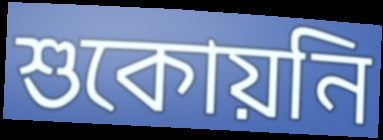
শুকোয়নি